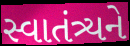
સ્વાતંત્ર્યને